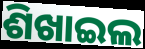
ଶିଖାଇଲ